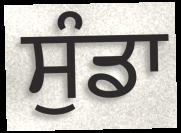
ਸੁੰਡਾ